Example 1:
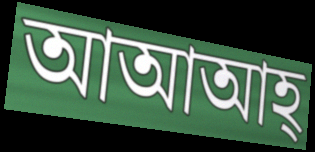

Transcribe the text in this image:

আআআহ্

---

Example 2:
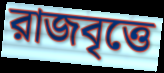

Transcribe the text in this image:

রাজবৃত্তে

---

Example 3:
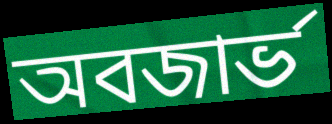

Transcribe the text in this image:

অবজার্ভ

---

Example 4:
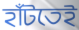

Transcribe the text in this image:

হাঁটতেই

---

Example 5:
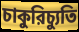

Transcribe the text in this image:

চাকুরিচ্যুতি